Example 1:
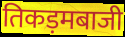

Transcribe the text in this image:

तिकड़मबाजी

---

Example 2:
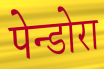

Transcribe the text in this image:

पेन्डोरा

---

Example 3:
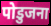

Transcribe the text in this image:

पोडुजना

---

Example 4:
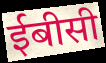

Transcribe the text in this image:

ईबीसी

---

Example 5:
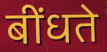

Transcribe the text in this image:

बींधते